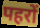
पहरों